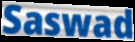
Saswad